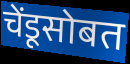
चेंडूसोबत